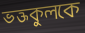
ভক্তকুলকে